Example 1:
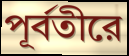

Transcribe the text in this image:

পূর্বতীরে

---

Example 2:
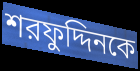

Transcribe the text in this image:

শরফুদ্দিনকে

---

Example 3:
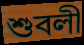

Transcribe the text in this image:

শুবলী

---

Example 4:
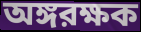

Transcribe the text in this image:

অঙ্গরক্ষক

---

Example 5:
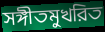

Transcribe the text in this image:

সঙ্গীতমুখরিত